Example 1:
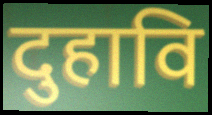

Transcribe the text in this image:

दुहावि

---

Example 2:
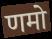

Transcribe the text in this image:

णमो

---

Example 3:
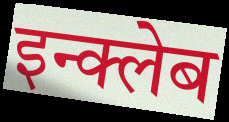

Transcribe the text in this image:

इन्क्लेब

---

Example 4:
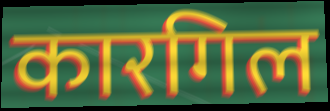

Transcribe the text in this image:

कारगिल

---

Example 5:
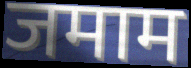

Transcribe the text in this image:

जमाम